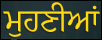
ਮੁਹਣੀਆਂ